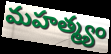
మహత్మ్యం